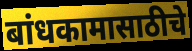
बांधकामासाठीचे